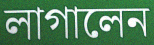
লাগালেন